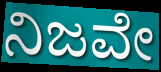
ನಿಜವೇ